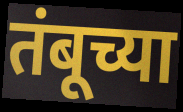
तंबूच्या